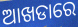
ଆଖଡାରେ